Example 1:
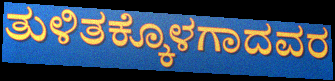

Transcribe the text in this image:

ತುಳಿತಕ್ಕೊಳಗಾದವರ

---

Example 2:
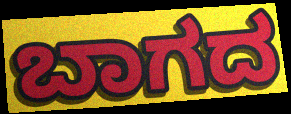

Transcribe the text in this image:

ಬಾಗದ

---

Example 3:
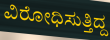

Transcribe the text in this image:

ವಿರೋಧಿಸುತ್ತಿದ್ದ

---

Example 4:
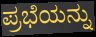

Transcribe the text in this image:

ಪ್ರಭೆಯನ್ನು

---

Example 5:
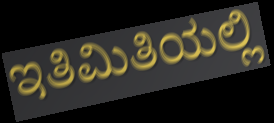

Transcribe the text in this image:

ಇತಿಮಿತಿಯಲ್ಲಿ